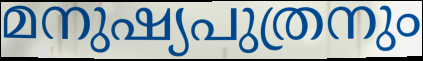
മനുഷ്യപുത്രനും